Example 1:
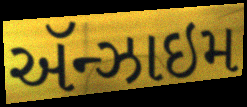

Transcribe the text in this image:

ઍન્ઝાઇમ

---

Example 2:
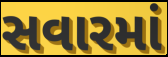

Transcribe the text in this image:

સવારમાં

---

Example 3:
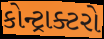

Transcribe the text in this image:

કોન્ટ્રાક્ટરો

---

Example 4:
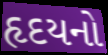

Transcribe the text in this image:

હૃદયનો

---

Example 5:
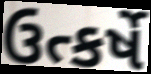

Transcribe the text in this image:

ઉત્કર્ષે